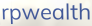
rpwealth